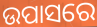
ଉପାସରେ